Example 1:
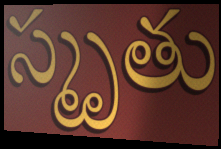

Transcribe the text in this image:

స్మృతు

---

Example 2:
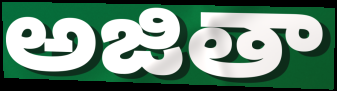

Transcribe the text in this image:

అజితా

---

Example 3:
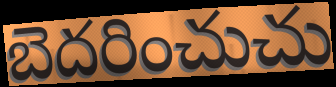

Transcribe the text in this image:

బెదరించుచు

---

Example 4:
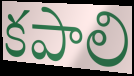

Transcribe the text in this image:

కపాలి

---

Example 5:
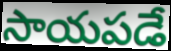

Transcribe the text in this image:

సాయపడే